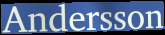
Andersson